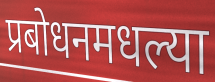
प्रबोधनमधल्या